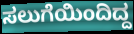
ಸಲುಗೆಯಿಂದಿದ್ದ